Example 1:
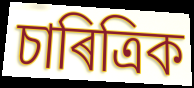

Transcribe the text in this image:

চাৰিত্ৰিক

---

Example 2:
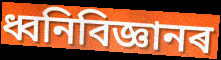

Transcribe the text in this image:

ধ্বনিবিজ্ঞানৰ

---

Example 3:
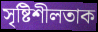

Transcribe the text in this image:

সৃষ্টিশীলতাক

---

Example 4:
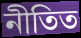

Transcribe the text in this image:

নীতিত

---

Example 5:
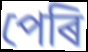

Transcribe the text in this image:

পেৰি